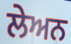
ਲੇਅਨ